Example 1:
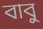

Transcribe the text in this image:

বাবু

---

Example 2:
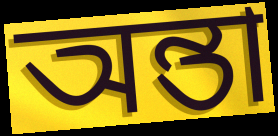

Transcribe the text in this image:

অন্তা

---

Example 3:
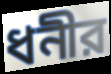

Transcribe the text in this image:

ধনীর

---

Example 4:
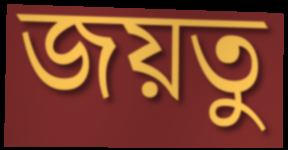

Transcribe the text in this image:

জয়তু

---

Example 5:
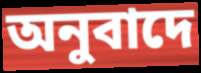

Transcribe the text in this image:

অনুবাদে